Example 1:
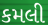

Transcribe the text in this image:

કમલી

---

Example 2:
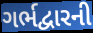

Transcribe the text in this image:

ગર્ભદ્વારની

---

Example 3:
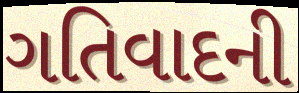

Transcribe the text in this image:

ગતિવાદની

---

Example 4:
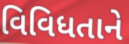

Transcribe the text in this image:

વિવિધતાને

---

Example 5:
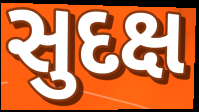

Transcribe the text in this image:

સુદક્ષ